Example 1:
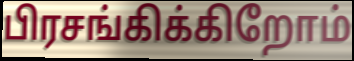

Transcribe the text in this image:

பிரசங்கிக்கிறோம்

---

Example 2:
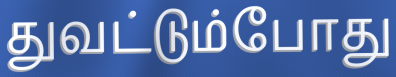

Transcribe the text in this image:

துவட்டும்போது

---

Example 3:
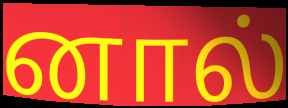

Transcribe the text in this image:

னால்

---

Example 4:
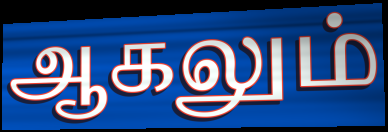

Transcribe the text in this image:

ஆகலும்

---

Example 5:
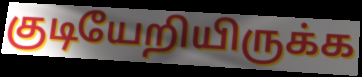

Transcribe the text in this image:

குடியேறியிருக்க